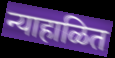
न्याहाळित